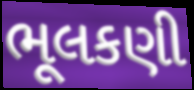
ભૂલકણી